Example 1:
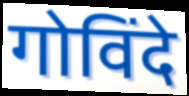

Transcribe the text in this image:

गोविंदे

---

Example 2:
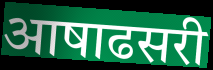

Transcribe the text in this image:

आषाढसरी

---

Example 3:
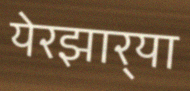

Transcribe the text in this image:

येरझार्‍या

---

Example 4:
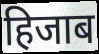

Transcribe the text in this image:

हिजाब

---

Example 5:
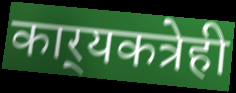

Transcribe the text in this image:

कार्यकत्रेही